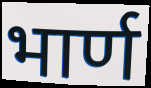
भार्ण